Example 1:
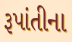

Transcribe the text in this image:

રૂપાંતીના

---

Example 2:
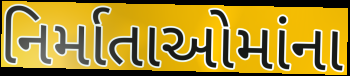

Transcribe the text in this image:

નિર્માતાઓમાંના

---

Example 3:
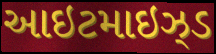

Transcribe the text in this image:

આઇટમાઇઝ્ડ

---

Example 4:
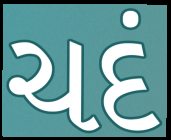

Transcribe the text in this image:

ચદં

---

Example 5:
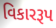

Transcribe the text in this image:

વિકારરૂપ